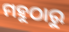
ମହୁଠାରୁ